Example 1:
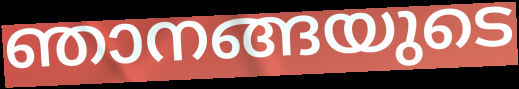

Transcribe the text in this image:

ഞാനങ്ങയുടെ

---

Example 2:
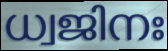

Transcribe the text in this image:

ധ്വജിനഃ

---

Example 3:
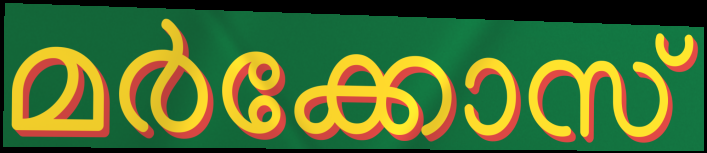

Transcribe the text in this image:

മർക്കോസ്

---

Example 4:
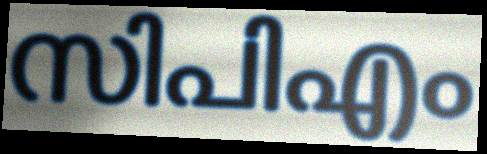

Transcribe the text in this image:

സിപിഎം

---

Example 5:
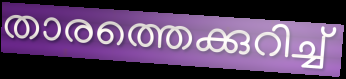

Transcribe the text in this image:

താരത്തെക്കുറിച്ച്